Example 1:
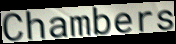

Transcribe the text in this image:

Chambers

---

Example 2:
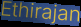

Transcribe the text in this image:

Ethirajan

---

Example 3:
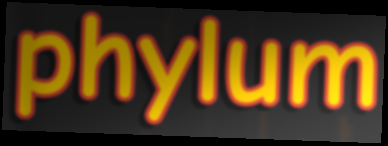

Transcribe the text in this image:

phylum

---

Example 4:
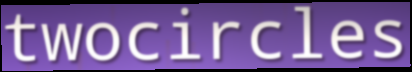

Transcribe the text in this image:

twocircles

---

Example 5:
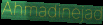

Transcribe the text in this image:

Ahmadinejad